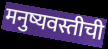
मनुष्यवस्तीची